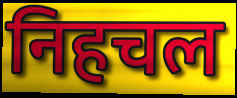
निहचल